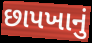
છાપખાનું